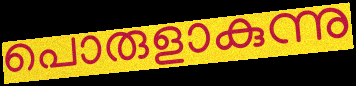
പൊരുളാകുന്നു